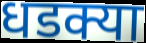
धडक्या